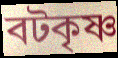
বটকৃষ্ণ